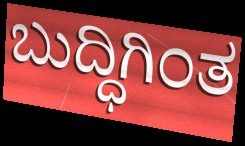
ಬುದ್ಧಿಗಿಂತ